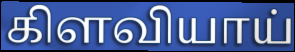
கிளவியாய்